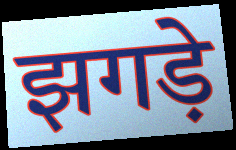
झगड़े